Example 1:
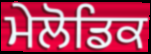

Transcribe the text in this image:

ਮੇਲੋਡਿਕ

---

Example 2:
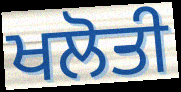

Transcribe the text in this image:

ਖਲੋਤੀ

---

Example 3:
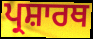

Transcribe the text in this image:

ਪ੍ਰਸ਼ਾਰਥ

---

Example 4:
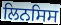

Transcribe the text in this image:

ਲਿਨਸਿਸ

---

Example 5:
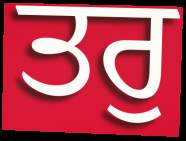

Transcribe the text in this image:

ਤਰੁ